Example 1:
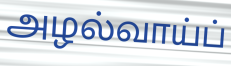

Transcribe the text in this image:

அழல்வாய்ப்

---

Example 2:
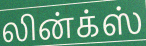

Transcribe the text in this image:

லின்க்ஸ்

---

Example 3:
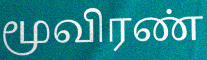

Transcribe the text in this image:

மூவிரண்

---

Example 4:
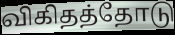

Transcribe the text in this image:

விகிதத்தோடு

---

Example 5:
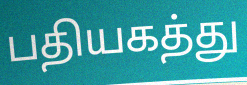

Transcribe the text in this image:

பதியகத்து